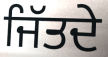
ਜਿੱਤਦੇ